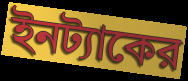
ইনট্যাকের